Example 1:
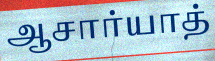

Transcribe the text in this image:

ஆசார்யாத்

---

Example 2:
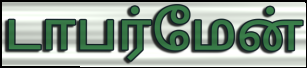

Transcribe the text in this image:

டாபர்மேன்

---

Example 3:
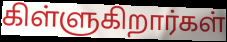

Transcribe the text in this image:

கிள்ளுகிறார்கள்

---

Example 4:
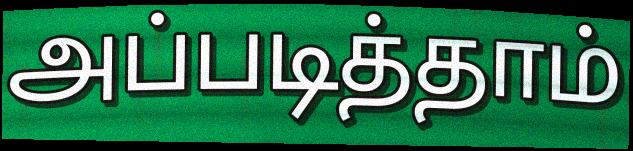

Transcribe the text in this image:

அப்படித்தாம்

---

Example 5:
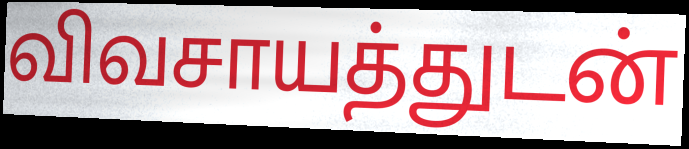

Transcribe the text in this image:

விவசாயத்துடன்